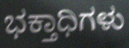
ಭಕ್ತಾಧಿಗಳು